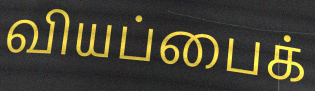
வியப்பைக்